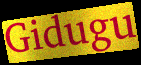
Gidugu